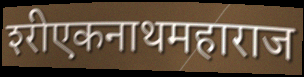
श्रीएकनाथमहाराज